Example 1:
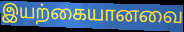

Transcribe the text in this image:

இயற்கையானவை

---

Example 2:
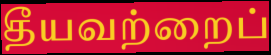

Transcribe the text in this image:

தீயவற்றைப்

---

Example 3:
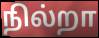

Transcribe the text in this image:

நில்றா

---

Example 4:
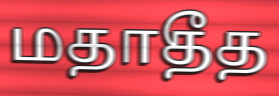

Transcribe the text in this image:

மதாதீத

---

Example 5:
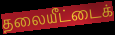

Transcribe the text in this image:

தலையீட்டைக்